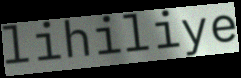
lihiliye